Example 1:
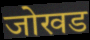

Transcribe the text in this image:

जोखड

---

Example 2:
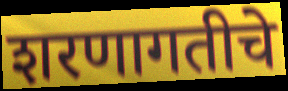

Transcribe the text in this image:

शरणागतीचे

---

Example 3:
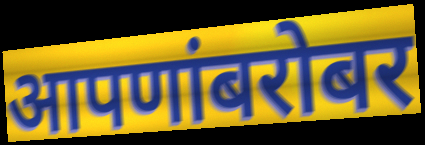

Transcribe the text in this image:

आपणांबरोबर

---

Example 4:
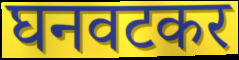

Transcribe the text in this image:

घनवटकर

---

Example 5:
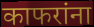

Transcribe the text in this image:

काफरांना